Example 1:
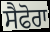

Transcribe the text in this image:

ਸੈਫੋਰਾ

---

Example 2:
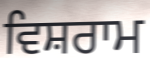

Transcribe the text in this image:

ਵਿਸ਼ਰਾਮ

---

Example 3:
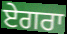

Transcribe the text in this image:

ਏਗਰਾ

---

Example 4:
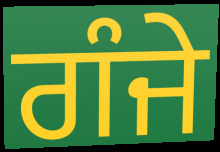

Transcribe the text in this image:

ਗੰਜੇ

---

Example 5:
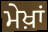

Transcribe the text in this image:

ਮੇਖ਼ਾਂ